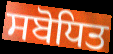
ਸਬੋਧਿਤ